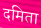
दमिता